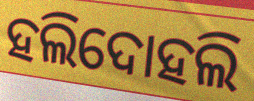
ହଲିଦୋହଲି